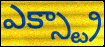
ఎక్స్ట్రా